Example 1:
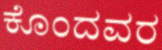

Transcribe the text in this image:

ಕೊಂದವರ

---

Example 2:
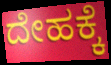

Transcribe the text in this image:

ದೇಹಕ್ಕೆ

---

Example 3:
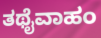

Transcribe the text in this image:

ತಥೈವಾಹಂ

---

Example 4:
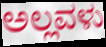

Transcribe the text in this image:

ಅಲ್ಲವಳು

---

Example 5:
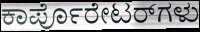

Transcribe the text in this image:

ಕಾರ್ಪೊರೇಟರ್‌ಗಳು